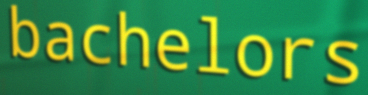
bachelors